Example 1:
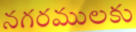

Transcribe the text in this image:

నగరములకు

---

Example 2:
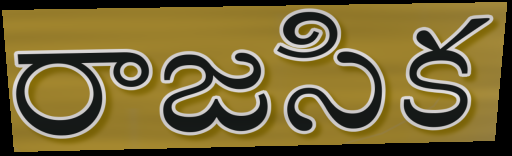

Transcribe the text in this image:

రాజసిక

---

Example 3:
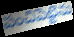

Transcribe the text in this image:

పంచిపెట్టెను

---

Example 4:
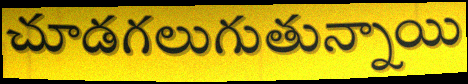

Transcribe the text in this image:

చూడగలుగుతున్నాయి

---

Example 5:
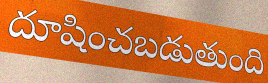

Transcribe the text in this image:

దూషించబడుతుంది